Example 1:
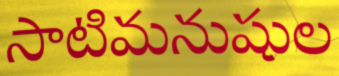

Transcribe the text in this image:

సాటిమనుషుల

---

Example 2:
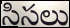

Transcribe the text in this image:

సిసలు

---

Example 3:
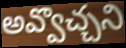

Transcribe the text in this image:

అవ్వొచ్చని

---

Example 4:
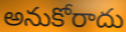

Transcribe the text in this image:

అనుకోరాదు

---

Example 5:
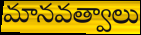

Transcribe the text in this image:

మానవత్వాలు